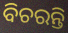
ବିଚରନ୍ତି